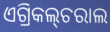
ଏଗ୍ରିକଲ୍‌ଚରାଲ